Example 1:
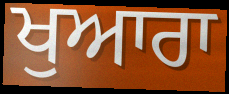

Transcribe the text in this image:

ਖੁਆਰਾ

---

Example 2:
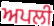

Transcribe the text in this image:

ਅਪਲੀ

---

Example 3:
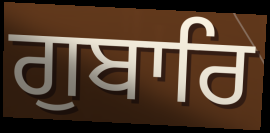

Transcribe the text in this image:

ਗੁਬਾਰਿ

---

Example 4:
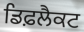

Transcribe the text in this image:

ਡਿਫ਼ਲੈਕਟ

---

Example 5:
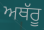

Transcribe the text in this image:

ਅਥੱਰੂ